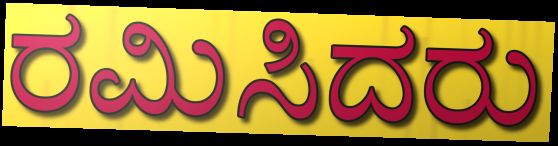
ರಮಿಸಿದರು